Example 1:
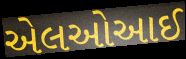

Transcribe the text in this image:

એલઓઆઈ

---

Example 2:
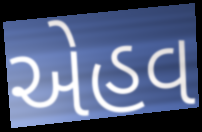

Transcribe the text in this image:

એહવ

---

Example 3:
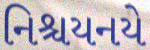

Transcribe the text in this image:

નિશ્ચયનયે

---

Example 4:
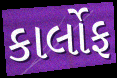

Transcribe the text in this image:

કાર્લોફ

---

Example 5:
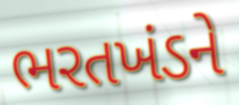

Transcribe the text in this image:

ભરતખંડને